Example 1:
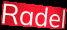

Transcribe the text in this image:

Radel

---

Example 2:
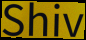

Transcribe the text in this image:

Shiv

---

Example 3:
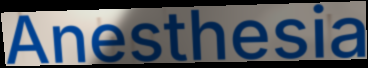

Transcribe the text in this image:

Anesthesia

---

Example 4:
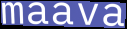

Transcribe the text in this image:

maava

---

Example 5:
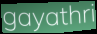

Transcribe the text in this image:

gayathri